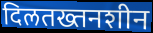
दिलतख्तनशीन